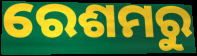
ରେଶମରୁ